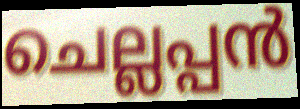
ചെല്ലപ്പൻ